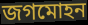
জগমোহন